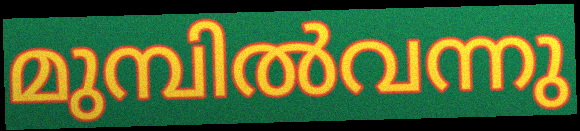
മുമ്പിൽവന്നു